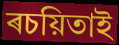
ৰচয়িতাই